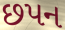
છપન